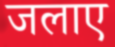
जलाए